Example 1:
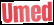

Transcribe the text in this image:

Umed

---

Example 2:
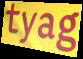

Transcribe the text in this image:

tyag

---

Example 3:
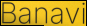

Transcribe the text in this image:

Banavi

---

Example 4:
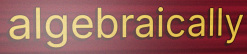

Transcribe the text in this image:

algebraically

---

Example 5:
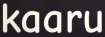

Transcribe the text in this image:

kaaru